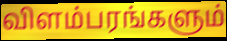
விளம்பரங்களும்